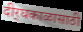
दीर्घकाळासाठी